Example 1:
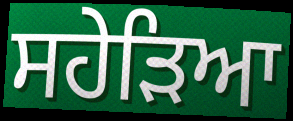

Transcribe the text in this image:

ਸਹੇੜਿਆ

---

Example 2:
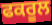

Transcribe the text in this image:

ਫਕਰੂਲ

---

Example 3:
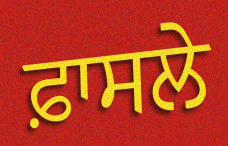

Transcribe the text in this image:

ਫ਼ਾਸਲੇ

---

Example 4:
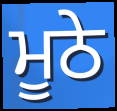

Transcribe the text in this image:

ਮੂਠੇ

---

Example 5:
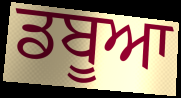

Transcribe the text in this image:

ਡਬੂਆ